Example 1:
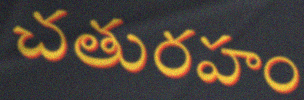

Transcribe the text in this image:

చతురహం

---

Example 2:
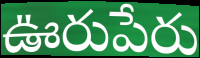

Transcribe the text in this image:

ఊరుపేరు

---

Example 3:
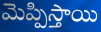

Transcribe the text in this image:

మెప్పిస్తాయి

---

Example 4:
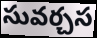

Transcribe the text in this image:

సువర్చస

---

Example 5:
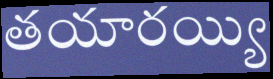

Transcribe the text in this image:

తయారయ్యి